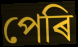
পেৰি